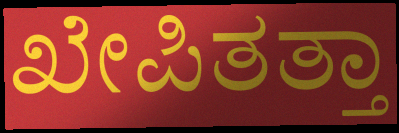
ಖೇಪಿತತ್ತಾ